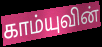
காம்யுவின்